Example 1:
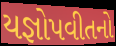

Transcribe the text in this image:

યજ્ઞોપવીતનો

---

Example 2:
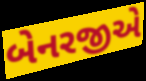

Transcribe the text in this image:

બેનરજીએ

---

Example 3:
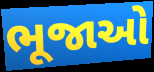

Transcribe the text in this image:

ભૂજાઓ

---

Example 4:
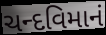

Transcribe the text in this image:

ચન્દવિમાનં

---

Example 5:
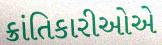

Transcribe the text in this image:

ક્રાંતિકારીઓએ